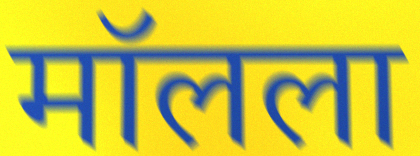
मॉलला